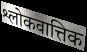
श्लोकवात्तिक